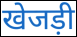
खेजड़ी